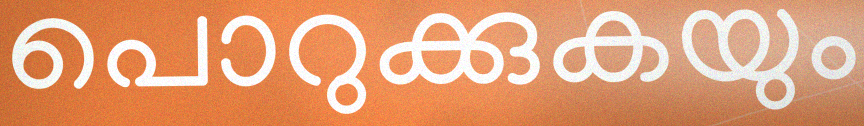
പൊറുക്കുകയും